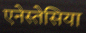
एनेस्तेसिया